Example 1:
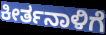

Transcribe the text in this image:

ಕೀರ್ತನಾಳಿಗೆ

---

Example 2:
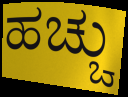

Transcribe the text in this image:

ಹಚ್ಚು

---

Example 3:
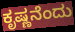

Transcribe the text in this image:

ಕೃಷ್ಣನೆಂದು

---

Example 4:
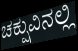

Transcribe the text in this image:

ಚಕ್ಷುವಿನಲ್ಲಿ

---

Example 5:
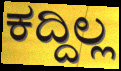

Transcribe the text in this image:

ಕದ್ದಿಲ್ಲ